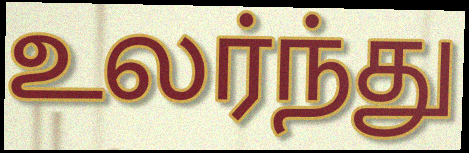
உலர்ந்து